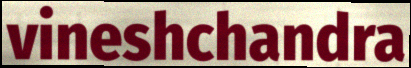
vineshchandra